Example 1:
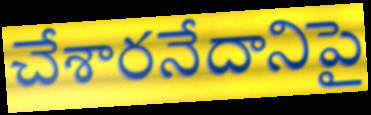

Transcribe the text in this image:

చేశారనేదానిపై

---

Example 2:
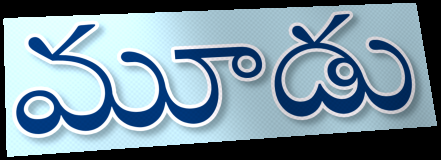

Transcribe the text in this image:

మూడు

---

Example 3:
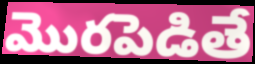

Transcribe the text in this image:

మొరపెడితే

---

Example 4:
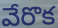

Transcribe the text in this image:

వేరొక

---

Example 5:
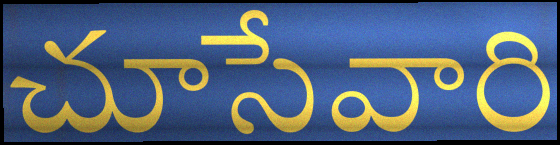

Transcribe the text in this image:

చూసేవారి